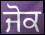
ਜੋਕ